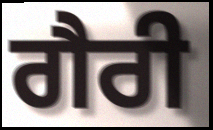
ਗੈਰੀ